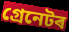
গ্ৰেনেটৰ